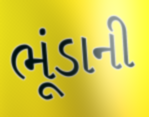
ભૂંડાની